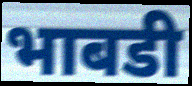
भाबडी